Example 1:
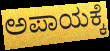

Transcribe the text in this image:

ಅಪಾಯಕ್ಕೆ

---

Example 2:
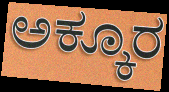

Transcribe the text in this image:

ಅಕ್ಕೂರ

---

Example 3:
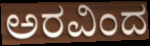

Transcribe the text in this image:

ಅರವಿಂದ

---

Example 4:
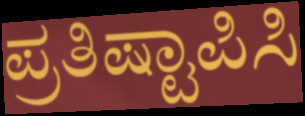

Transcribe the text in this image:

ಪ್ರತಿಷ್ಟಾಪಿಸಿ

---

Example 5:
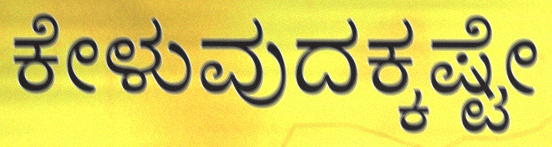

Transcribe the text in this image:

ಕೇಳುವುದಕ್ಕಷ್ಟೇ